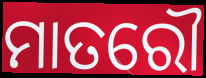
ମାତରୌ